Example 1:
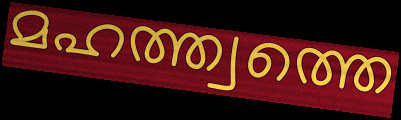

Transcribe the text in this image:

മഹത്ത്വത്തെ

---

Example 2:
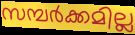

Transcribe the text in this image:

സമ്പർക്കമില്ല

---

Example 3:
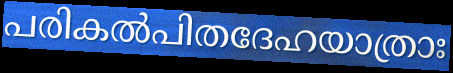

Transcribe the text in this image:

പരികൽപിതദേഹയാത്രാഃ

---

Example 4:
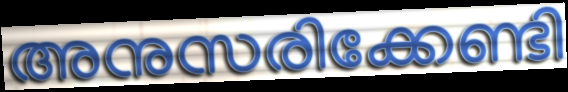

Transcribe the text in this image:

അനുസരിക്കേണ്ടി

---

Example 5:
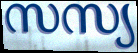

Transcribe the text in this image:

സസ്യ